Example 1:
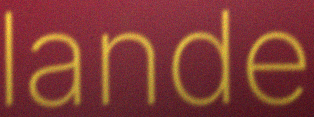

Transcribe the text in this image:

lande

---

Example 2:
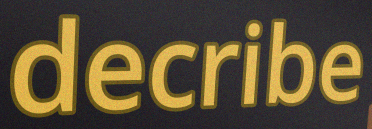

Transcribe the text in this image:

decribe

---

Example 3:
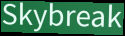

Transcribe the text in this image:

Skybreak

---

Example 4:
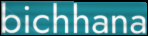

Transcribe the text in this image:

bichhana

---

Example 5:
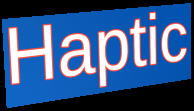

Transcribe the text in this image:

Haptic